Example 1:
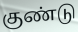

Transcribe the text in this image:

குண்டு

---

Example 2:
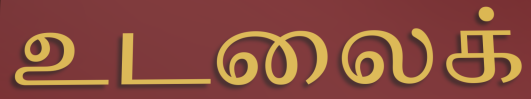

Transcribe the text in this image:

உடலைக்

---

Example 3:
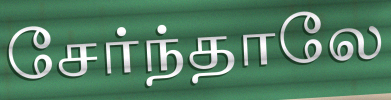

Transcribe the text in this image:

சேர்ந்தாலே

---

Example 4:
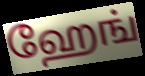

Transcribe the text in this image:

ஹேங்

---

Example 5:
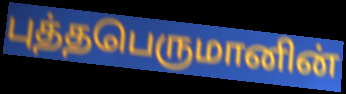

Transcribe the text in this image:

புத்தபெருமானின்